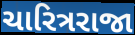
ચારિત્રરાજા